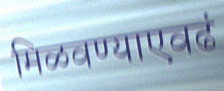
मिळवण्याएवढं